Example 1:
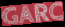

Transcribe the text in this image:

GARC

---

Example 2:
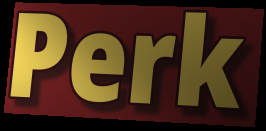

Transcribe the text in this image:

Perk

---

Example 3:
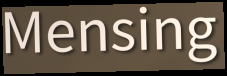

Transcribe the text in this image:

Mensing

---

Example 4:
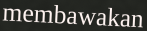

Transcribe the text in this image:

membawakan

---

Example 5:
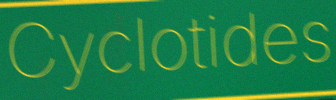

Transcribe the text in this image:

Cyclotides